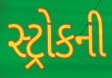
સ્ટ્રોકની